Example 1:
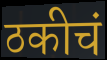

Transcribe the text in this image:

ठकीचं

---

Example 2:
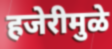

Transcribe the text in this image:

हजेरीमुळे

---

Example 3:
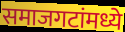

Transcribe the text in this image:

समाजगटांमध्ये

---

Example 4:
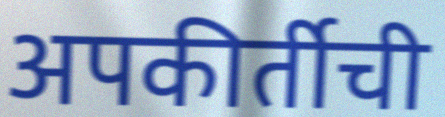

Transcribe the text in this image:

अपकीर्तीची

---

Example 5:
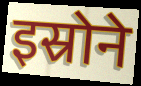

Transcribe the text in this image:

इस्रोने